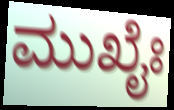
ಮುಖೈಃ